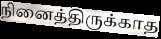
நினைத்திருக்காத